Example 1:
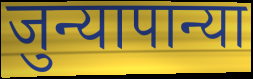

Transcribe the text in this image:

जुन्यापान्या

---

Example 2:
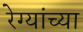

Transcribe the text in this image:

रेग्यांच्या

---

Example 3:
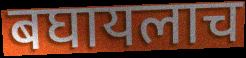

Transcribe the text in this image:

बघायलाच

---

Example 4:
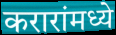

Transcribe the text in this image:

करारांमध्ये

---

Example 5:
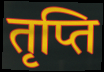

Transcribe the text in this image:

तृप्ति